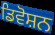
ਡਿਵੋਸ਼ਨ